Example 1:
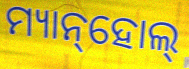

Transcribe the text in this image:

ମ୍ୟାନ୍‌ହୋଲ୍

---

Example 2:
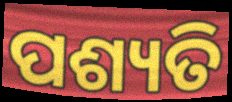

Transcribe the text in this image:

ପଶ୍ୟତି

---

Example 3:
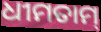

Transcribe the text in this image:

ଧୀମତାମ୍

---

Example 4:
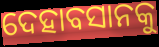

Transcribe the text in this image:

ଦେହାବସାନକୁ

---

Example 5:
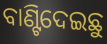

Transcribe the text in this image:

ବାଣ୍ଟିଦେଇଛୁ